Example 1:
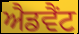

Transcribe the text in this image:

ਐਡਵੈਂਟ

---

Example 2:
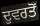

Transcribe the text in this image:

ਦੁਵਰਤੋਂ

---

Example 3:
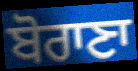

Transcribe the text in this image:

ਬੋਰਾਣਾ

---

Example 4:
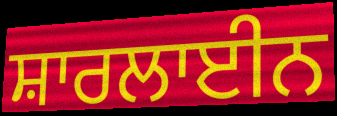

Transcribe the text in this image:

ਸ਼ਾਰਲਾਈਨ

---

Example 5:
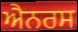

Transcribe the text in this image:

ਐਨਰਸ